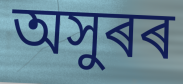
অসুৰৰ